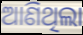
ଆଣିଥିଲା